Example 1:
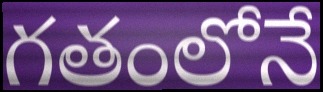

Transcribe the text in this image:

గతంలోనే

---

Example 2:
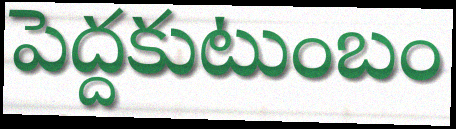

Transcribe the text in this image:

పెద్దకుటుంబం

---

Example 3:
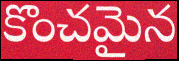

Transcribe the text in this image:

కొంచమైన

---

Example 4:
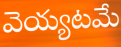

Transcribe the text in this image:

వెయ్యటమే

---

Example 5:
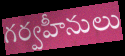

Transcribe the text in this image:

గర్వహీనులు